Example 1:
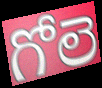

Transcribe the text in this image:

గోలె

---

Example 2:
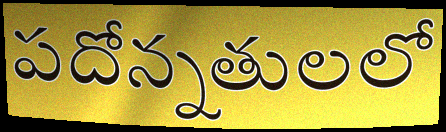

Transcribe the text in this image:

పదోన్నతులలో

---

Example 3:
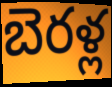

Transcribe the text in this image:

బెరళ్ల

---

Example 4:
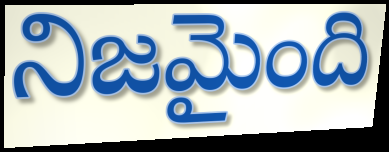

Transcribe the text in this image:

నిజమైంది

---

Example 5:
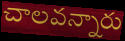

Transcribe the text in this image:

చాలవన్నారు